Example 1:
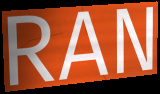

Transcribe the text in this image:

RAN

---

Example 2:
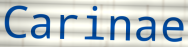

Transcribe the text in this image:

Carinae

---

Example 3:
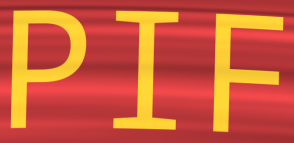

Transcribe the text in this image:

PIF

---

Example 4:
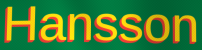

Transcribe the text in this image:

Hansson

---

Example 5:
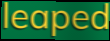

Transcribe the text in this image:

leaped